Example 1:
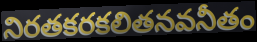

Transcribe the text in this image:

నిరతకరకలితనవనీతం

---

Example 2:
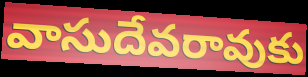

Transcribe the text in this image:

వాసుదేవరావుకు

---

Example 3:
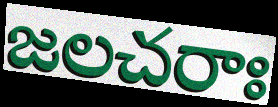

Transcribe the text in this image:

జలచరాః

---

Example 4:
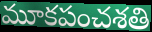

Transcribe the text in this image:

మూకపంచశతి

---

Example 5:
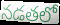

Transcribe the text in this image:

నడతలో